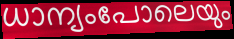
ധാന്യംപോലെയും